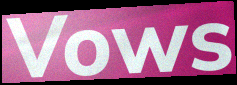
Vows